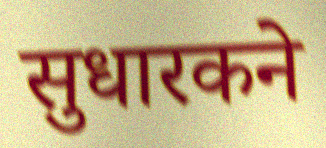
सुधारकने